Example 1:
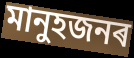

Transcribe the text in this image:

মানুহজনৰ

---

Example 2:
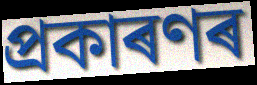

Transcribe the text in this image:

প্ৰকাৰণৰ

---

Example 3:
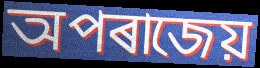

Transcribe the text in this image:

অপৰাজেয়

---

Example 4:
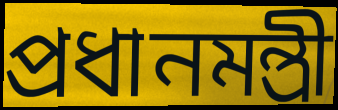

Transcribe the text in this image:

প্ৰধানমন্ত্ৰী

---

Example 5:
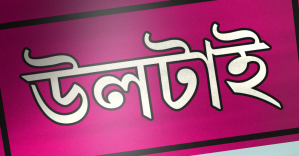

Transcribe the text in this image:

উলটাই